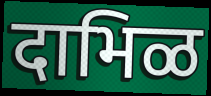
दाभिळ